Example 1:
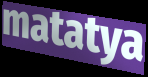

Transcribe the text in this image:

matatya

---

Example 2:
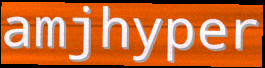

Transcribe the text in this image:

amjhyper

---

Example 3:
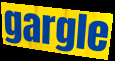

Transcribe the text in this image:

gargle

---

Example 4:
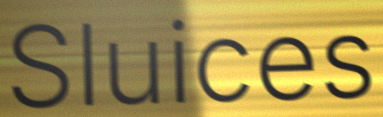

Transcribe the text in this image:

Sluices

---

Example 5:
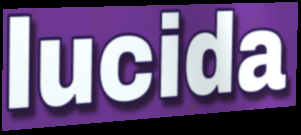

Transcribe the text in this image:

lucida